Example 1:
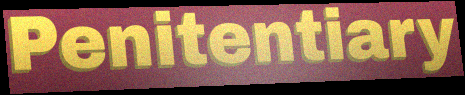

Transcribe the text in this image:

Penitentiary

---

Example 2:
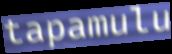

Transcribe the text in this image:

tapamulu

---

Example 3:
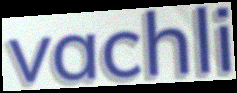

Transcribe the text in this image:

vachli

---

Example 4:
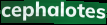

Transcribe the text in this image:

cephalotes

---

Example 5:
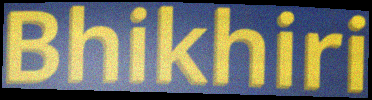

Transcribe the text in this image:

Bhikhiri